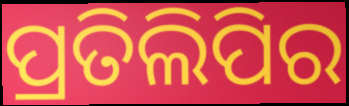
ପ୍ରତିଲିପିର